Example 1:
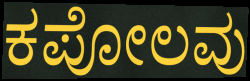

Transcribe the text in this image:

ಕಪೋಲವು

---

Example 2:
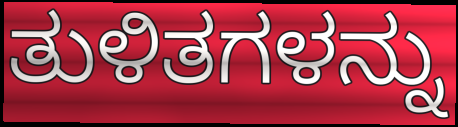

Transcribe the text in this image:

ತುಳಿತಗಳನ್ನು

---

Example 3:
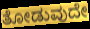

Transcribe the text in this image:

ತೋಡುವುದೇ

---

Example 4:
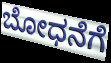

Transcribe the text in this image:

ಬೋಧನೆಗೆ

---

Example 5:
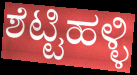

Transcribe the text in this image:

ಶೆಟ್ಟಿಹಳ್ಳಿ